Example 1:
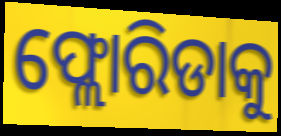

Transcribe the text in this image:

ଫ୍ଲୋରିଡାକୁ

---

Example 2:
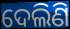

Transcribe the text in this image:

ଦେଲିଣି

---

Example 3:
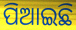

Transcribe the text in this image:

ପିଆଇଛି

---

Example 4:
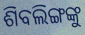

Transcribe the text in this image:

ଶିବଲିଙ୍ଗଙ୍କୁ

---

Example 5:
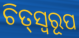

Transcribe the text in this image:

ଚିତ୍‌ସ୍ୱରୂପ